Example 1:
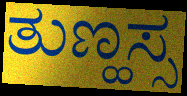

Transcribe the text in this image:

ತುಣ್ಹಸ್ಸ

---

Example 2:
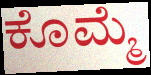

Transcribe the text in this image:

ಕೊಮ್ಮೆ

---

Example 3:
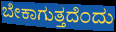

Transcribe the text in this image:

ಬೇಕಾಗುತ್ತದೆಂದು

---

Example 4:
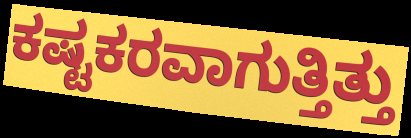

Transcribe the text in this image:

ಕಷ್ಟಕರವಾಗುತ್ತಿತ್ತು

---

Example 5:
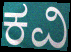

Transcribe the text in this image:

ಕವಿ